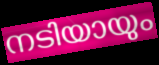
നടിയായും